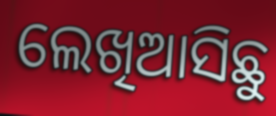
ଲେଖିଆସିଛୁ